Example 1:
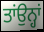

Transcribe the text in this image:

ਤਾਂਉਨ੍ਹਾਂ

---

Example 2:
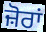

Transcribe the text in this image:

ਜ਼ੋਰਾਂ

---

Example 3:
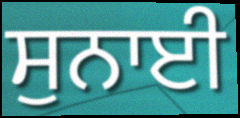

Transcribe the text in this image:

ਸੁਨਾਈ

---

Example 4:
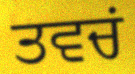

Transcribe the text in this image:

ਤਵਚਂ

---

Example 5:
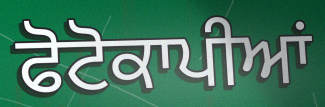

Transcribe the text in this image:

ਫੋਟੋਕਾਪੀਆਂ